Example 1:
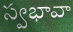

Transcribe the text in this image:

స్వభావా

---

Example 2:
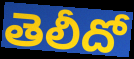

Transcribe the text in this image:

తెలీదో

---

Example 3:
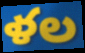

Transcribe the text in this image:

ళల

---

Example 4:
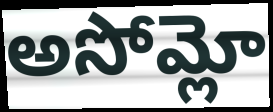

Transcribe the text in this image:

అసోమ్లో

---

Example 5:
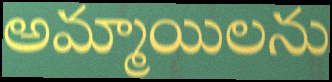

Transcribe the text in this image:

అమ్మాయిలను